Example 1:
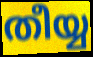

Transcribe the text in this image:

തീയ്യ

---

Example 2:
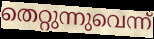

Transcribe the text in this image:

തെറ്റുന്നുവെന്ന്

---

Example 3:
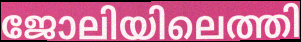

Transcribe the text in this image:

ജോലിയിലെത്തി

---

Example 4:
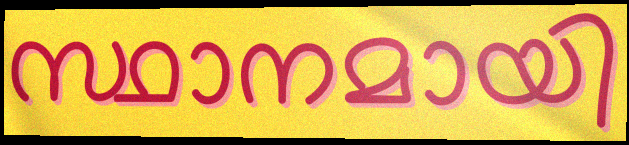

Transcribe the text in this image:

സ്ഥാനമായി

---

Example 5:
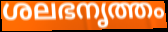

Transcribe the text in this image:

ശലഭനൃത്തം